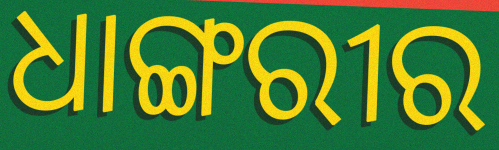
ଧାଙ୍ଗରୀର